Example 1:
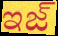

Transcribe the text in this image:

ఇజ్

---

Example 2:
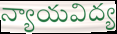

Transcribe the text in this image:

న్యాయవిద్య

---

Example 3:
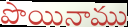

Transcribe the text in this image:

పొయినాము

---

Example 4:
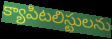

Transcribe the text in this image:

క్యాపిటలిస్టులను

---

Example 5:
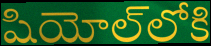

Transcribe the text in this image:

షియోల్‌లోకి